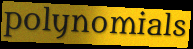
polynomials